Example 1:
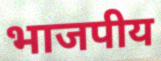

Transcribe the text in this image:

भाजपीय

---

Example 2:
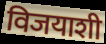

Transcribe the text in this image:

विजयाशी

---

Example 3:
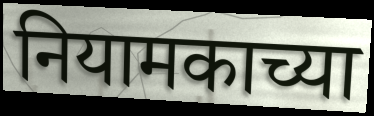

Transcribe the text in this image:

नियामकाच्या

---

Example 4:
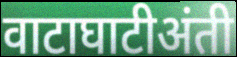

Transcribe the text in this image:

वाटाघाटीअंती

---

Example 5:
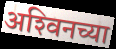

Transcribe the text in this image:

अश्विनच्या